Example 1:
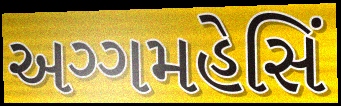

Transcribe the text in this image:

અગ્ગમહેસિં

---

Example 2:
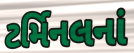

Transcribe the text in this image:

ટર્મિનલનાં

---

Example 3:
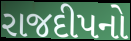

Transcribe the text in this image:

રાજદીપનો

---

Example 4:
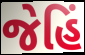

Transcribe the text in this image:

જેહિં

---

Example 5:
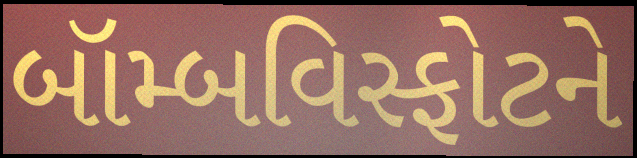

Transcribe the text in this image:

બૉમ્બવિસ્ફોટને